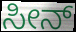
ಸೀನ್